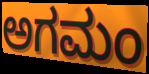
ಅಗಮಂ